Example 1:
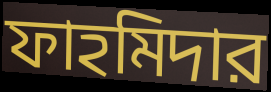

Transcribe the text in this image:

ফাহমিদার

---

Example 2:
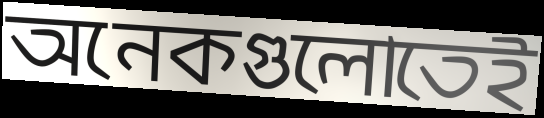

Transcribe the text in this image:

অনেকগুলোতেই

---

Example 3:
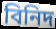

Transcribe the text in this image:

বিনিদ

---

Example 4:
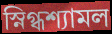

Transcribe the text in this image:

স্নিগ্ধশ্যামল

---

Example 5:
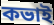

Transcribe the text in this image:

কভাই